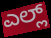
ಎಲ್ಲ್